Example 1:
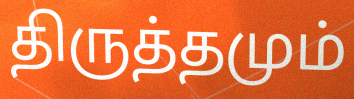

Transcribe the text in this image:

திருத்தமும்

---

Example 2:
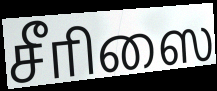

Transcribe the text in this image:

சீரிஸை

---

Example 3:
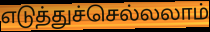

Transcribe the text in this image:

எடுத்துச்செல்லலாம்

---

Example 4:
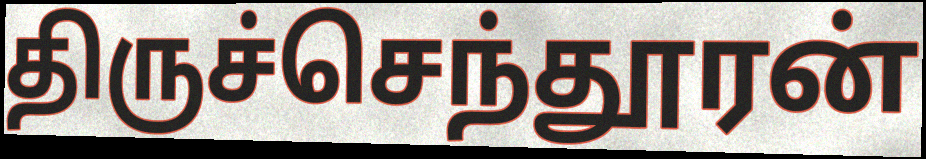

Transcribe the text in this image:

திருச்செந்தூரன்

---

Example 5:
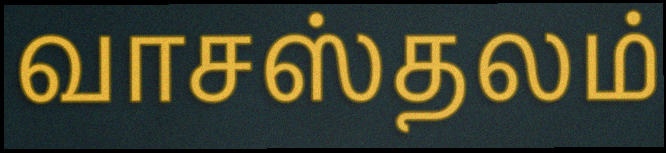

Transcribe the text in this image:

வாசஸ்தலம்